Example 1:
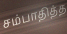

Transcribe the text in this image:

சம்பாதித்த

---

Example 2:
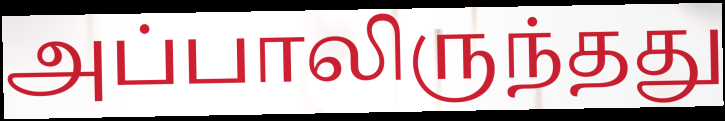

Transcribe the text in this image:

அப்பாலிருந்தது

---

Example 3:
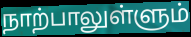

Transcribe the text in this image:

நாற்பாலுள்ளும்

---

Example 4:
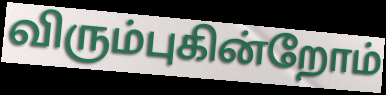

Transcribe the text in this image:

விரும்புகின்றோம்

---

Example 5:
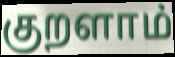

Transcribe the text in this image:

குறளாம்